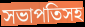
সভাপতিসহ